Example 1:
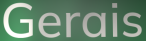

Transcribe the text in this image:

Gerais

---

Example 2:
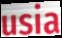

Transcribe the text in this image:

usia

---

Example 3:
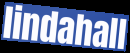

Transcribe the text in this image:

lindahall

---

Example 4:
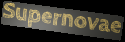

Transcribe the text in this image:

Supernovae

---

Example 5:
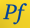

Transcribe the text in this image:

Pf